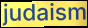
judaism